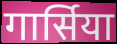
गार्सिया